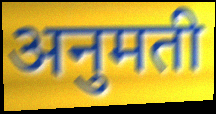
अनुमती